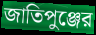
জাতিপুঞ্জের